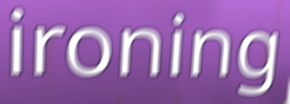
ironing